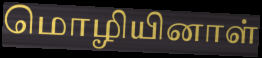
மொழியினாள்